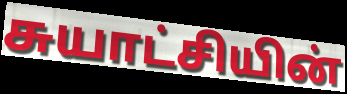
சுயாட்சியின்